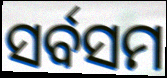
ସର୍ବସମ